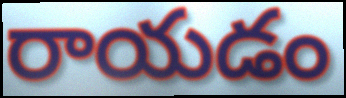
రాయడం